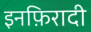
इनफ़िरादी